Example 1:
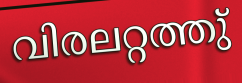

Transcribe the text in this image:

വിരലറ്റത്തു്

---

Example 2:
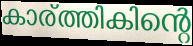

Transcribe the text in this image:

കാര്ത്തികിന്റെ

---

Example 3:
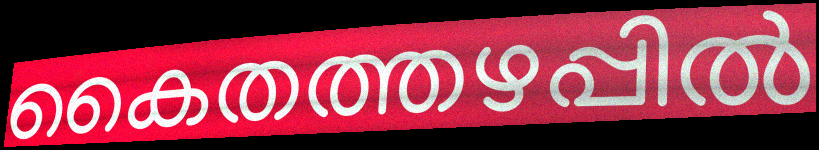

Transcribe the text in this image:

കൈതത്തഴപ്പിൽ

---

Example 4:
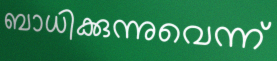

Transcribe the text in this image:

ബാധിക്കുന്നുവെന്ന്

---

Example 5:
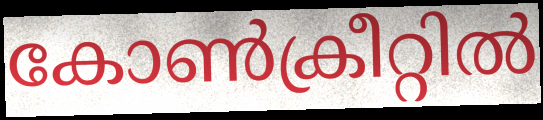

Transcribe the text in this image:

കോൺക്രീറ്റിൽ